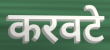
करवटे